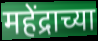
महेंद्राच्या